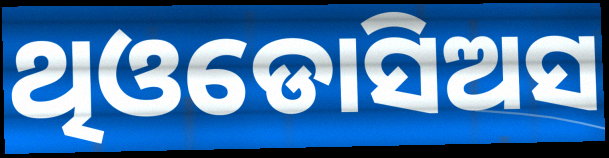
ଥିଓଡୋସିଅସ